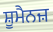
ਸ਼ੂਮੈਨਜ਼